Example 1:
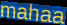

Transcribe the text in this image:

mahaa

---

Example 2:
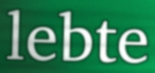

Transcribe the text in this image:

lebte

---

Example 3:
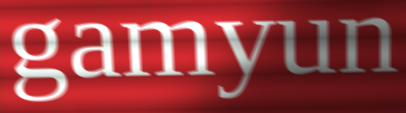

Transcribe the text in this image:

gamyun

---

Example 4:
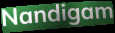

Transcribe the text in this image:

Nandigam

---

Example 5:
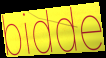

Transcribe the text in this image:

bidde